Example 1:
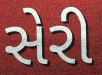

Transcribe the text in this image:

સેરી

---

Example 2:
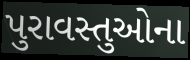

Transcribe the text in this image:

પુરાવસ્તુઓના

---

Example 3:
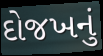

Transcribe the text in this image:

દોજખનું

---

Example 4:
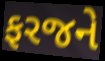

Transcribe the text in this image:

ફરજને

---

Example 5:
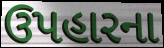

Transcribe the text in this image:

ઉપહારના